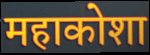
महाकोशा